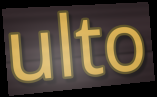
ulto